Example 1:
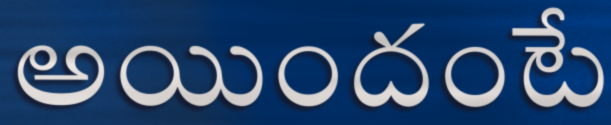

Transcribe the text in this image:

అయిందంటే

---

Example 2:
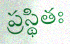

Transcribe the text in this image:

ప్రస్థితః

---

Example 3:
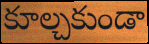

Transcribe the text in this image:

కూల్చకుండా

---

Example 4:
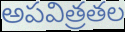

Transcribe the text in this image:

అపవిత్రతల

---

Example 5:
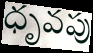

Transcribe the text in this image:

ధృవపు